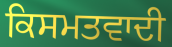
ਕਿਸਮਤਵਾਦੀ